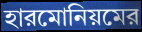
হারমোনিয়মের